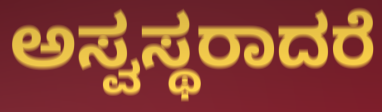
ಅಸ್ವಸ್ಥರಾದರೆ